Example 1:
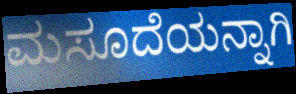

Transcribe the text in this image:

ಮಸೂದೆಯನ್ನಾಗಿ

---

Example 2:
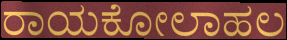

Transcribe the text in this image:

ರಾಯಕೋಲಾಹಲ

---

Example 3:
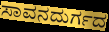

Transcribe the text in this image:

ಸಾವನದುರ್ಗದ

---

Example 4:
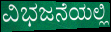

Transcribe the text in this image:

ವಿಭಜನೆಯಲ್ಲಿ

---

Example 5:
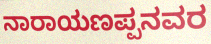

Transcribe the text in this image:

ನಾರಾಯಣಪ್ಪನವರ